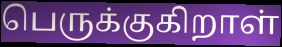
பெருக்குகிறாள்